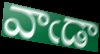
వాఁడా